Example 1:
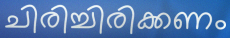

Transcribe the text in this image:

ചിരിച്ചിരിക്കണം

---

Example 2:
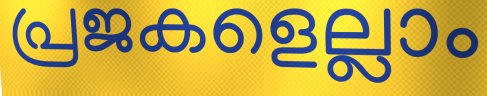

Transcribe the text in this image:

പ്രജകളെല്ലാം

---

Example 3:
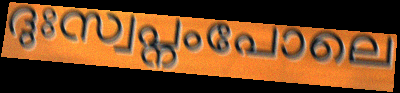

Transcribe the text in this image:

ദുഃസ്വപ്നംപോലെ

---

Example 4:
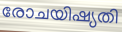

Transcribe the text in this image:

രോചയിഷ്യതി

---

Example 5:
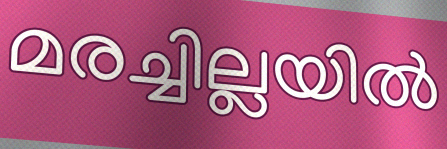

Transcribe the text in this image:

മരച്ചില്ലയിൽ